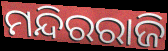
ମନ୍ଦିରରାଜି